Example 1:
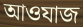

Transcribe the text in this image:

আওযাজ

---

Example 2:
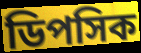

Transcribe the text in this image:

ডিপসিক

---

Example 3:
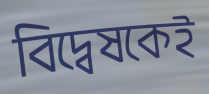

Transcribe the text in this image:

বিদ্বেষকেই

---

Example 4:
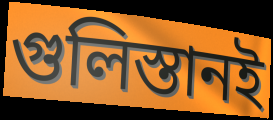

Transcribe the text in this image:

গুলিস্তানই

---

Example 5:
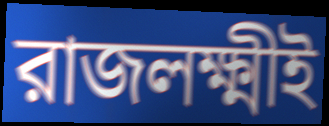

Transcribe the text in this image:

রাজলক্ষ্মীই